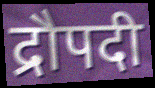
द्रौपदी